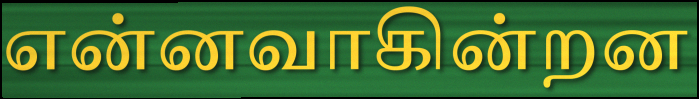
என்னவாகின்றன